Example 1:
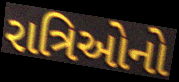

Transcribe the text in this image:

રાત્રિઓનો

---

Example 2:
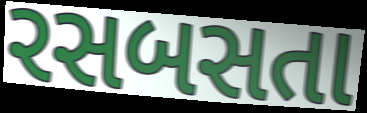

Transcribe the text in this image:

રસબસતા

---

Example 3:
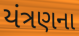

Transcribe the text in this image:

યંત્રણના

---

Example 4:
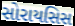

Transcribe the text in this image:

સોરાયસિસ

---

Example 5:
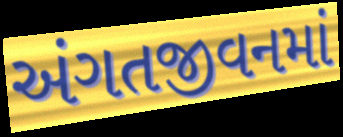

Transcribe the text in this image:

અંગતજીવનમાં